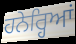
ਹਨੇਰ੍ਹਿਆਂ